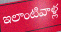
ఇలాంటివాళ్ల